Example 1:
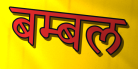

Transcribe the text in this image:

बम्बल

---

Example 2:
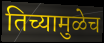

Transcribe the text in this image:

तिच्यामुळेच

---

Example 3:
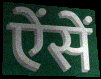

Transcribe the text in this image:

ऐंसें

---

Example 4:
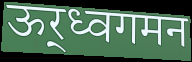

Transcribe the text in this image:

ऊर्ध्वगमन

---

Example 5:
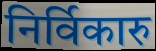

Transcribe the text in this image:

निर्विकारु